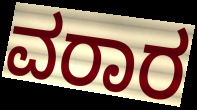
ವರಾರ